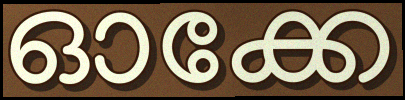
ഓക്കേ